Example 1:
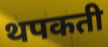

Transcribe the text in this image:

थपकती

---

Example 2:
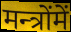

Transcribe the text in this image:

मन्त्रोंमें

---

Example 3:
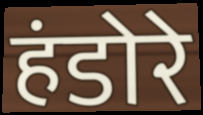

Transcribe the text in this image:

हंडोरे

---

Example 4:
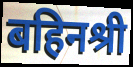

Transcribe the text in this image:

बहिनश्री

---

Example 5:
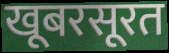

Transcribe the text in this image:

खूबरसूरत